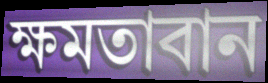
ক্ষমতাবান